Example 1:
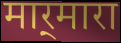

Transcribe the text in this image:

मार्मारा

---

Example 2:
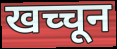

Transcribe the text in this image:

खच्चून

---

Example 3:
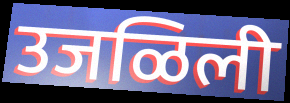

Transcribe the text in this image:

उजळिली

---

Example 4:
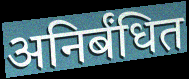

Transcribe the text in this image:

अनिर्बंधित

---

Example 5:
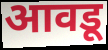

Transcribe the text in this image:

आवडू